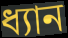
ধ্যান